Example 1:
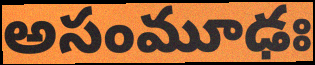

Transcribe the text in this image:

అసంమూఢః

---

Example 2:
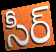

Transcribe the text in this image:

సీర్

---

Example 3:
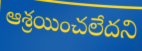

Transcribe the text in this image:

ఆశ్రయించలేదని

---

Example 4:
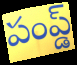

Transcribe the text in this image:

పంప్డ్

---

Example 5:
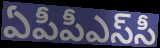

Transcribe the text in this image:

ఏపీపీఎస్‌సీ